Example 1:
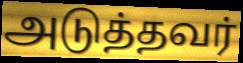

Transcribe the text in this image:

அடுத்தவர்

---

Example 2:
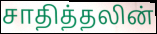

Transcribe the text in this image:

சாதித்தலின்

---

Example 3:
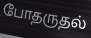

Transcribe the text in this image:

போதருதல்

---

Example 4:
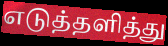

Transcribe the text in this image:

எடுத்தளித்து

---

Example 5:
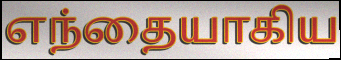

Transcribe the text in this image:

எந்தையாகிய